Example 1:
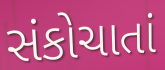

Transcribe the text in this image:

સંકોચાતાં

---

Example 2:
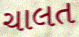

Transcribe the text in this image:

ચાલત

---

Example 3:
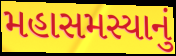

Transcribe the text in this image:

મહાસમસ્યાનું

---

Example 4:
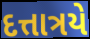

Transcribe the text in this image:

દત્તાત્રયે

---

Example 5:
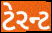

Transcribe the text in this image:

ટેરન્ટ